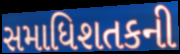
સમાધિશતકની